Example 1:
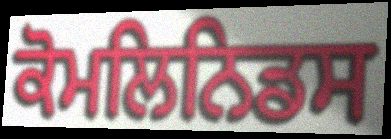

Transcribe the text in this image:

ਕੋਮਲਿਨਿਡਸ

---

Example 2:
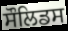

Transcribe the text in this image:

ਸੌਲਿਡਸ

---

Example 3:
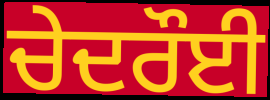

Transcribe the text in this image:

ਚੇਦਰੌਈ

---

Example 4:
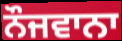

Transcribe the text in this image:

ਨੌਜਵਾਨਾ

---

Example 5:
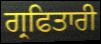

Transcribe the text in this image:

ਗ੍ਰਫਿਤਾਰੀ